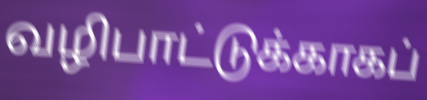
வழிபாட்டுக்காகப்